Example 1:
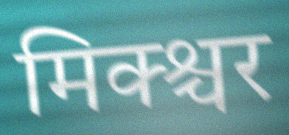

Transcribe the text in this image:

मिक्श्चर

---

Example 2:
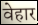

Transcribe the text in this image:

वेहार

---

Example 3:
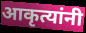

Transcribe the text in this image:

आकृत्यांनी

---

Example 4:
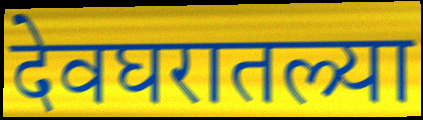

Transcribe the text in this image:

देवघरातल्या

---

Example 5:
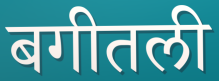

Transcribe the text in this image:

बगीतली